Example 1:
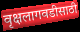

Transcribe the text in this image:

वृक्षलागवडीसाठी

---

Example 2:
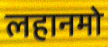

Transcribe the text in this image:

लहानमो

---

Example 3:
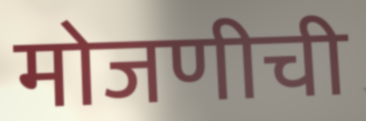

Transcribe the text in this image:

मोजणीची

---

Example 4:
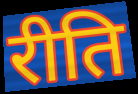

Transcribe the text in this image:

रीति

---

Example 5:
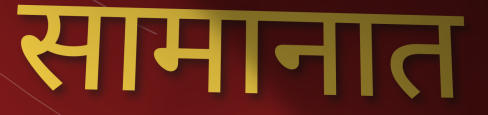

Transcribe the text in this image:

सामानात